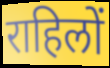
राहिलों